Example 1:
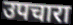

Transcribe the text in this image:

उपचारा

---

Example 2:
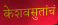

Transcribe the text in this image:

केशवसुतांचं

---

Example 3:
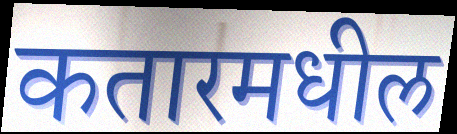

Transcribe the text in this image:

कतारमधील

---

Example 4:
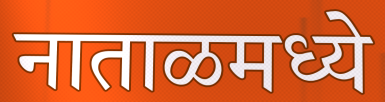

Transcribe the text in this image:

नाताळमध्ये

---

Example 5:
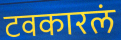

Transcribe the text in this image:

टवकारलं